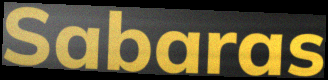
Sabaras